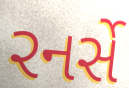
રનર્સે